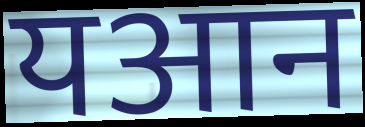
यआन